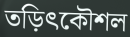
তড়িৎকৌশল